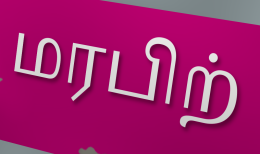
மரபிற்